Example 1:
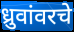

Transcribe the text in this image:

ध्रुवांवरचे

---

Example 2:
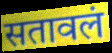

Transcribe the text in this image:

सतावलं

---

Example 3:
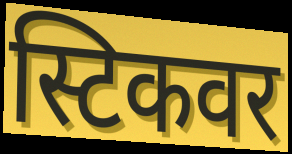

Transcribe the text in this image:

स्टिकवर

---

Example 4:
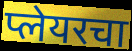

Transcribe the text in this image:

प्लेयरचा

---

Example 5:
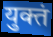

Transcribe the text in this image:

युक्तं